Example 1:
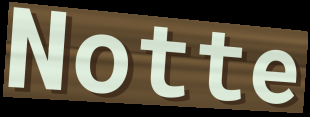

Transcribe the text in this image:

Notte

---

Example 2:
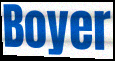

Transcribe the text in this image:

Boyer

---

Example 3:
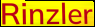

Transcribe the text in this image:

Rinzler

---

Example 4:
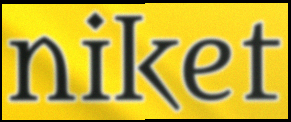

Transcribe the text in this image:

niket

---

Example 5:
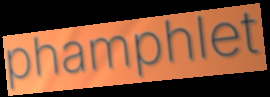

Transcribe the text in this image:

phamphlet